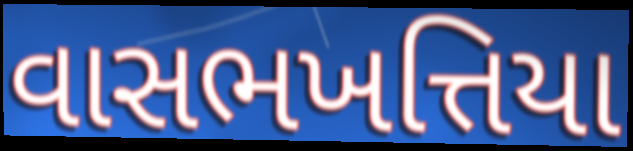
વાસભખત્તિયા